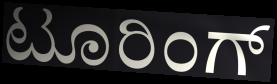
ಟೂರಿಂಗ್